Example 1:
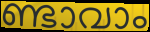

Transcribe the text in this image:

ണ്ടാവാം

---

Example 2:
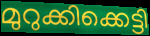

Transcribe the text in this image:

മുറുക്കിക്കെട്ടി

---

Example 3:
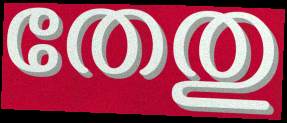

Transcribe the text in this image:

തേതു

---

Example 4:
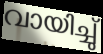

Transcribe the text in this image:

വായിച്ചു്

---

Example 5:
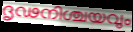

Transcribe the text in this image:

ദൃഢനിശ്ചയവും